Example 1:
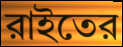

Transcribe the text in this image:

রাইতের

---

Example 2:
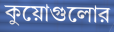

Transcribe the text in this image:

কুয়োগুলোর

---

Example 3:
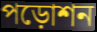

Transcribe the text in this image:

পড়োশন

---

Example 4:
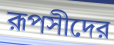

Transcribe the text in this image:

রূপসীদের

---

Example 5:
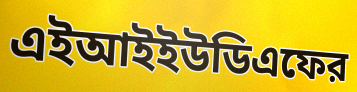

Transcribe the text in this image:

এইআইইউডিএফের